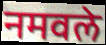
नमवले